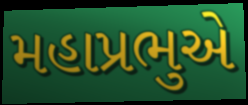
મહાપ્રભુએ